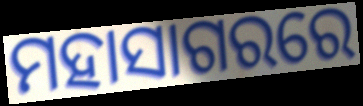
ମହାସାଗରରେ